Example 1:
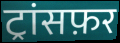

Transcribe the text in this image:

ट्रांसफ़र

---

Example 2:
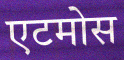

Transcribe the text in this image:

एटमोस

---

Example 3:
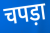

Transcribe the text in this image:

चपड़ा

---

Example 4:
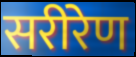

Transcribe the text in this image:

सरीरेण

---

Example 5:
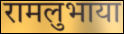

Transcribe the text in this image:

रामलुभाया